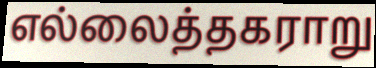
எல்லைத்தகராறு